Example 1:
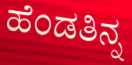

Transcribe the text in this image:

ಹೆಂಡತಿನ್ನ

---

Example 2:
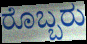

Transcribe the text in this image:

ರೊಬ್ಬರು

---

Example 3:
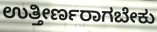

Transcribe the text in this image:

ಉತ್ತೀರ್ಣರಾಗಬೇಕು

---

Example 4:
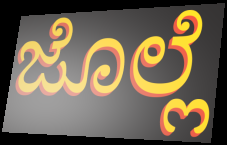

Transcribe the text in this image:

ಜೊಲ್ಲೆ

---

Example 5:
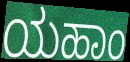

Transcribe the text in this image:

ಯಹಾಂ